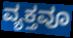
ವ್ಯಕ್ತವೂ